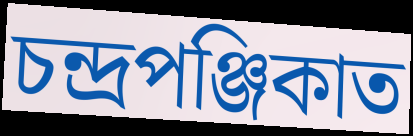
চন্দ্ৰপঞ্জিকাত